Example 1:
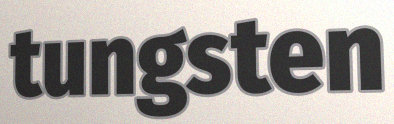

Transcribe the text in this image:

tungsten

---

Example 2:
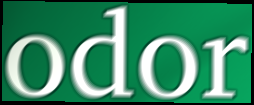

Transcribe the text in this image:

odor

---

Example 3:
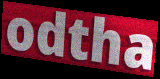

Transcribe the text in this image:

odtha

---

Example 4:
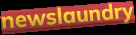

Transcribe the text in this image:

newslaundry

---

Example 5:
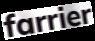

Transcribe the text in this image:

farrier